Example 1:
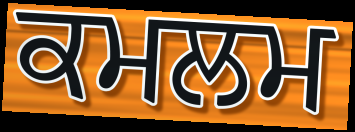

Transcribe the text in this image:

ਕਮਲਮ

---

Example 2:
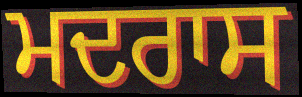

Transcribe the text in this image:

ਮਦਰਾਸ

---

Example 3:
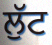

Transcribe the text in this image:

ਲੁੱਟ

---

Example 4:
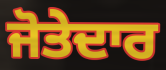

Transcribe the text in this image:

ਜੋਤੇਦਾਰ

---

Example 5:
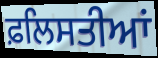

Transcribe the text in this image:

ਫ਼ਲਿਸਤੀਆਂ